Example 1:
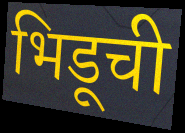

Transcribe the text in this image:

भिडूची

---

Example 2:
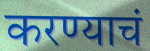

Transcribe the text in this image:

करण्याचं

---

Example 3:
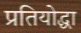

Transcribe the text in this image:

प्रतियोद्धा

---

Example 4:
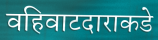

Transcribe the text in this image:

वहिवाटदाराकडे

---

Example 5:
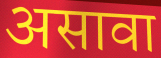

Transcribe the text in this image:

असावा